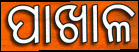
ପାଖାଳ